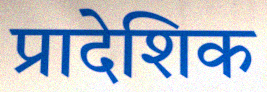
प्रादेशिक